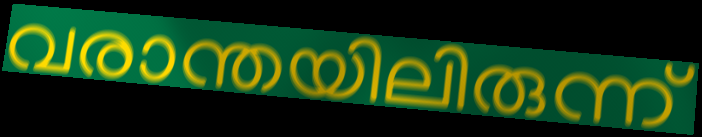
വരാന്തയിലിരുന്ന്